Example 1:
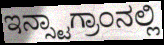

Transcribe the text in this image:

ಇನ್ಸ್ಟಾಗ್ರಾಂನಲ್ಲಿ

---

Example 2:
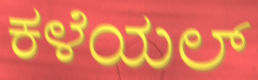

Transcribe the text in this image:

ಕಳೆಯಲ್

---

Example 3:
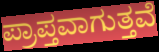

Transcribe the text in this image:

ಪ್ರಾಪ್ತವಾಗುತ್ತವೆ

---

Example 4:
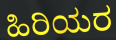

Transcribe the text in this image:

ಹಿರಿಯರ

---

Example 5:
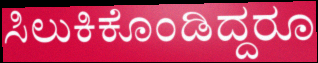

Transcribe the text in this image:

ಸಿಲುಕಿಕೊಂಡಿದ್ದರೂ